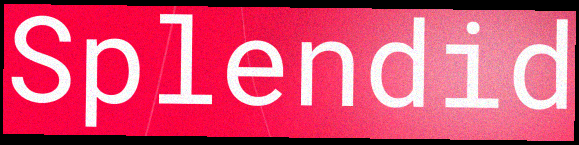
Splendid